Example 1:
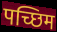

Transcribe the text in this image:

पच्छिम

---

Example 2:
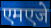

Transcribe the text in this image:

एमएजे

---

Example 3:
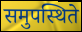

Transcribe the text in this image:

समुपस्थिते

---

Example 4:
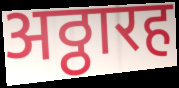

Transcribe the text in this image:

अठ्ठारह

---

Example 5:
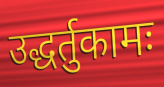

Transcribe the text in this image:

उद्धर्तुकामः